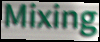
Mixing